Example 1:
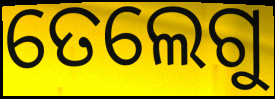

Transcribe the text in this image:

ତେଲେଗୁ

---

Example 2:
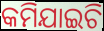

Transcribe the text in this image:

କମିଯାଇଚି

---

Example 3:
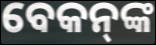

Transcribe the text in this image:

ବେକନ୍‌ଙ୍କ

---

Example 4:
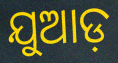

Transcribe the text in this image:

ଯୁଆଡ଼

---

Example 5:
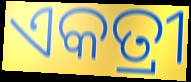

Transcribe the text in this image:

ଏକତ୍ରୀ